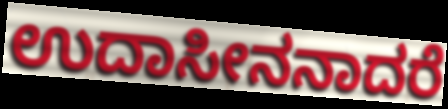
ಉದಾಸೀನನಾದರೆ